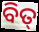
ବିତ୍